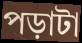
পড়াটা